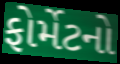
ફોર્મેટનો